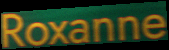
Roxanne